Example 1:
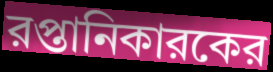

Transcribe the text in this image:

রপ্তানিকারকের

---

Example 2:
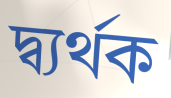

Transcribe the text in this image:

দ্ব্যর্থক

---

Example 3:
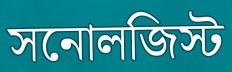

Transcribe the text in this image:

সনোলজিস্ট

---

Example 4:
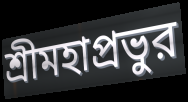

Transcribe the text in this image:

শ্রীমহাপ্রভুর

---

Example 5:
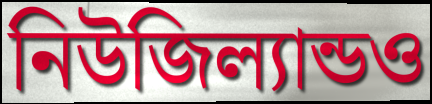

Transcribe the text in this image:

নিউজিল্যান্ডও